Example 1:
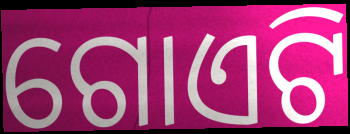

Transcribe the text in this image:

ଗୋଏଟି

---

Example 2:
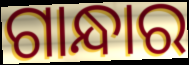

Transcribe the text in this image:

ଗାନ୍ଧାର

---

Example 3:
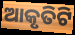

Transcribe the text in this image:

ଆକୃତିଟି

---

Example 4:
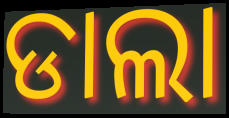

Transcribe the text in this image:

ଡାଲା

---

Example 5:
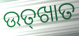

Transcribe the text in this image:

ଉତ୍‌ଖାତ